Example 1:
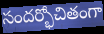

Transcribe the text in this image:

సందర్భోచితంగా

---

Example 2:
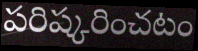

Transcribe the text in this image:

పరిష్కరించటం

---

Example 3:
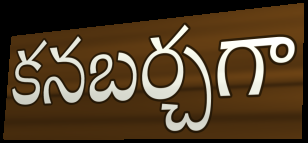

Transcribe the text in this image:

కనబర్చగా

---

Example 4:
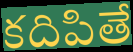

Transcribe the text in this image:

కదిపితే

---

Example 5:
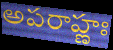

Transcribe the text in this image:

అపరాహ్ణః